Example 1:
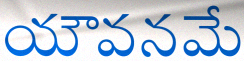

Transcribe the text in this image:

యౌవనమే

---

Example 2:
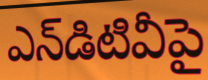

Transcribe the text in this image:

ఎన్‌డిటివీపై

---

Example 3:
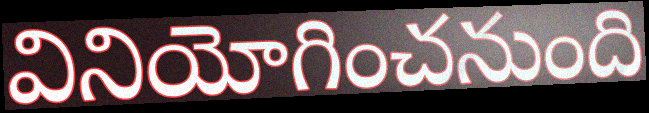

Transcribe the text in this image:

వినియోగించనుంది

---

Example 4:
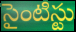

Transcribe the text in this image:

సైంటిస్టు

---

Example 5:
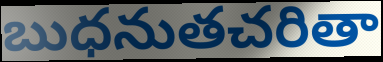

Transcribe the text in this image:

బుధనుతచరితా